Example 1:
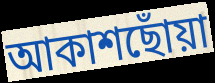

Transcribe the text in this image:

আকাশছোঁয়া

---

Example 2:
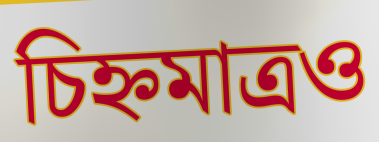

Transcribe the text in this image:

চিহ্নমাত্রও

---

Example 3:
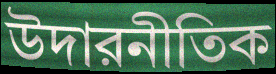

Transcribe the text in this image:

উদারনীতিক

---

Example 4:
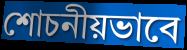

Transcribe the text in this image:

শোচনীয়ভাবে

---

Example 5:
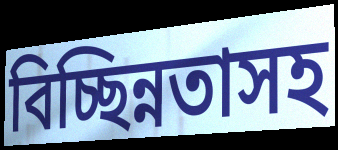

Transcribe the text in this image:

বিচ্ছিন্নতাসহ